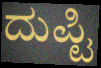
ದುಪ್ಟಿ